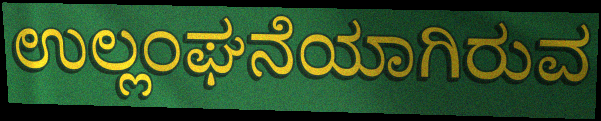
ಉಲ್ಲಂಘನೆಯಾಗಿರುವ